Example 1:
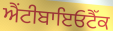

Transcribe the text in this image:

ਐਂਟੀਬਾਇਓਟੈੱਕ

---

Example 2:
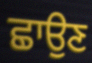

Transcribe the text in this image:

ਛਾਉਣ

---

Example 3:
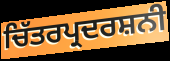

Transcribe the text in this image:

ਚਿੱਤਰਪ੍ਰਦਰਸ਼ਨੀ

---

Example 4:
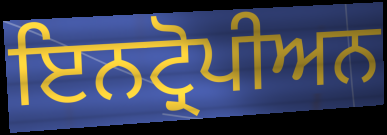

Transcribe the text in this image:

ਇਨਟ੍ਰੋਪੀਅਨ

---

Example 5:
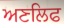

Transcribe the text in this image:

ਅਣਲਿਫ